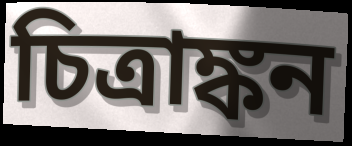
চিত্রাঙ্কন